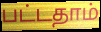
பட்டதாம்